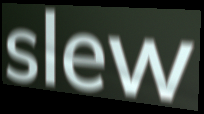
slew